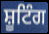
ਸ਼ੂਟਿੰਗ